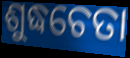
ଶୁଦ୍ଧଚେତା